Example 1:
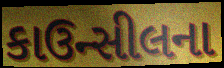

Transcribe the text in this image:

કાઉન્સીલના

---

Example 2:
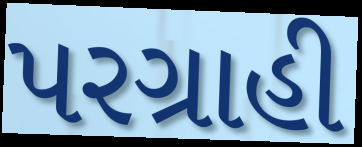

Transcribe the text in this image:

પરગ્રાહી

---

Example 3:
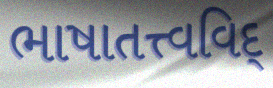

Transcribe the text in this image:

ભાષાતત્ત્વવિદ્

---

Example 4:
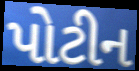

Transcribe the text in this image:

પોટીન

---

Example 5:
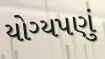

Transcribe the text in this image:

યોગ્યપણું